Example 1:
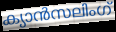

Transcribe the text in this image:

ക്യാൻസലിംഗ്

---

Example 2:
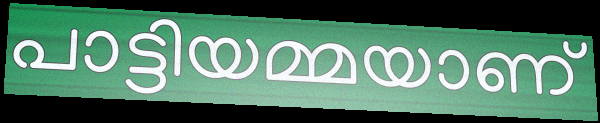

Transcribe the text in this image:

പാട്ടിയമ്മയാണ്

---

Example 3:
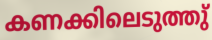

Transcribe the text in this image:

കണക്കിലെടുത്തു്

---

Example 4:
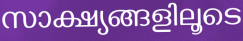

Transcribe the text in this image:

സാക്ഷ്യങ്ങളിലൂടെ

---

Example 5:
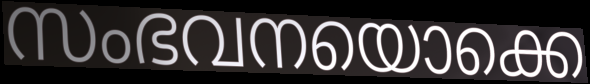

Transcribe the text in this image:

സംഭവനയൊക്കെ